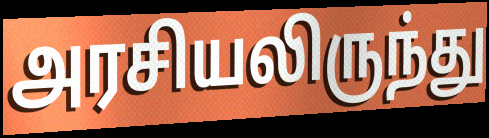
அரசியலிருந்து